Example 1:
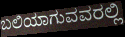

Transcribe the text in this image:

ಬಲಿಯಾಗುವವರಲ್ಲಿ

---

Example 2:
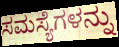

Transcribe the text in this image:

ಸಮಸ್ಯೆಗಳನ್ನು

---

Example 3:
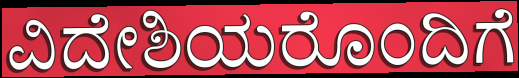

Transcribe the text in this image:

ವಿದೇಶಿಯರೊಂದಿಗೆ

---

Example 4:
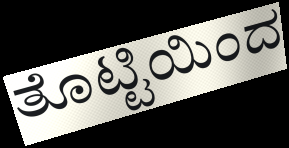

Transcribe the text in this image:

ತೊಟ್ಟಿಯಿಂದ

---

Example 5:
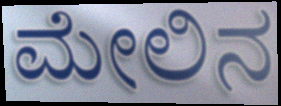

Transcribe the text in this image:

ಮೇಲಿನ